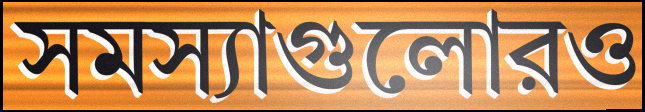
সমস্যাগুলোরও